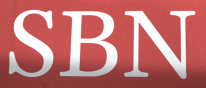
SBN